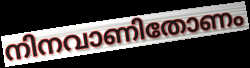
നിനവാണിതോണം